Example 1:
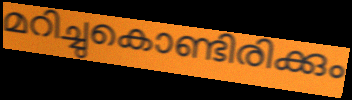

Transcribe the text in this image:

മറിച്ചുകൊണ്ടിരിക്കും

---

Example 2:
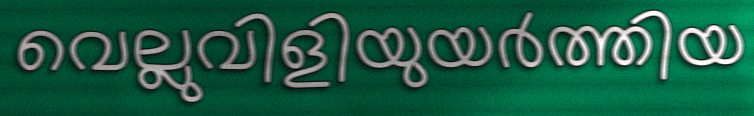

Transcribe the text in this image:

വെല്ലുവിളിയുയർത്തിയ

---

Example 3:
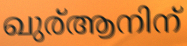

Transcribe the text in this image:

ഖുര്ആനിന്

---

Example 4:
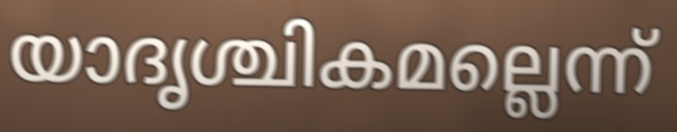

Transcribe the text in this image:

യാദൃശ്ചികമല്ലെന്ന്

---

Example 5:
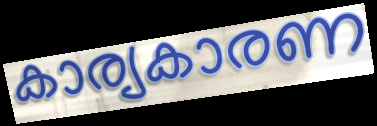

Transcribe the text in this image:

കാര്യകാരണ